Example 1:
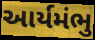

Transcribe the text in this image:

આર્યમંભુ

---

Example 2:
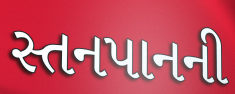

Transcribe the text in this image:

સ્તનપાનની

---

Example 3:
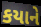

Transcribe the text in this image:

કયાને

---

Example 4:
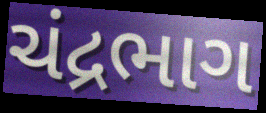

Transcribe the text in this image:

ચંદ્રભાગ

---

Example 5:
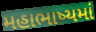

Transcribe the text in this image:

મહાભાષ્યમાં